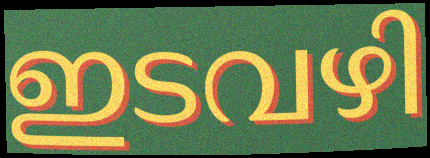
ഇടവഴി